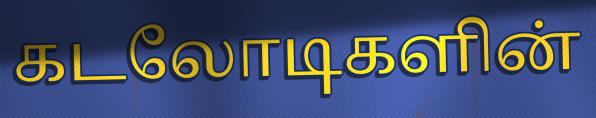
கடலோடிகளின்